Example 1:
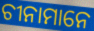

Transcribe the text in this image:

ଚୀନାମାନେ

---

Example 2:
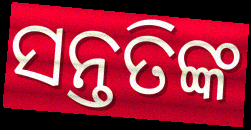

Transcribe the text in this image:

ସନ୍ତତିଙ୍କ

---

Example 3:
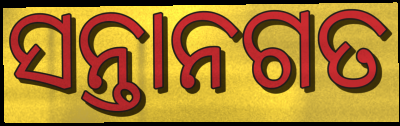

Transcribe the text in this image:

ସନ୍ତାନଗତ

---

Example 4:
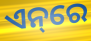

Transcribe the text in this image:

ଏନ୍‌ରେ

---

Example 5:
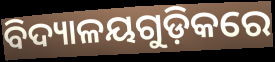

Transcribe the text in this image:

ବିଦ୍ୟାଳୟଗୁଡ଼ିକରେ